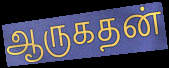
ஆருகதன்